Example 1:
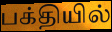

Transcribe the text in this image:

பக்தியில்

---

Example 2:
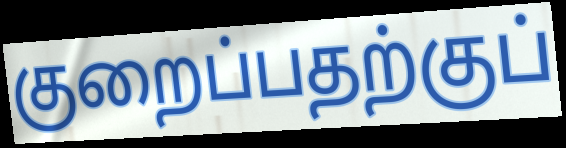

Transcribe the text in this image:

குறைப்பதற்குப்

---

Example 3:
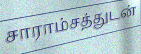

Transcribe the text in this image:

சாராம்சத்துடன்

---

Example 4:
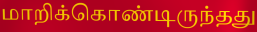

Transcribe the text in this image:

மாறிக்கொண்டிருந்தது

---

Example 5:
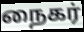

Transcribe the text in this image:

நைகர்